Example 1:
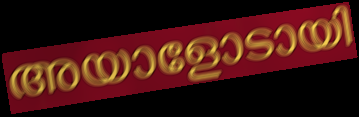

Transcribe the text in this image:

അയാളോടായി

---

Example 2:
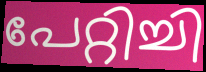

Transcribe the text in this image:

പേറ്റിച്ചി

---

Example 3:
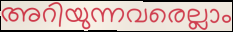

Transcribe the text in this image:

അറിയുന്നവരെല്ലാം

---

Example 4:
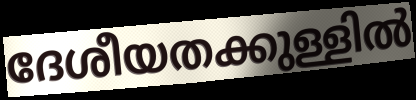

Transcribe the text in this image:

ദേശീയതക്കുള്ളിൽ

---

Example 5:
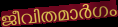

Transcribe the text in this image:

ജീവിതമാർഗം